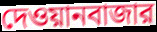
দেওয়ানবাজার